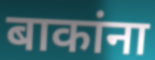
बाकांना